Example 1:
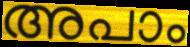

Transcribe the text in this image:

അപാം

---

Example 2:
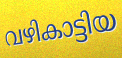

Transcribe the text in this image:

വഴികാട്ടിയ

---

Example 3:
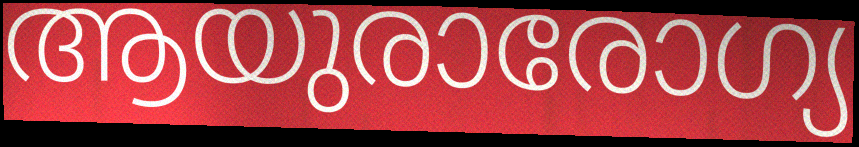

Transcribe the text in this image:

ആയുരാരോഗ്യ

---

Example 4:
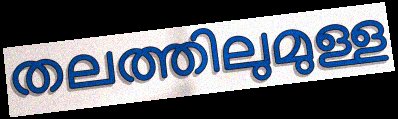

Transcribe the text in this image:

തലത്തിലുമുള്ള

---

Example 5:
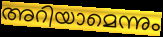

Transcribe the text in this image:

അറിയാമെന്നും